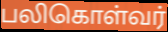
பலிகொள்வர்